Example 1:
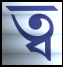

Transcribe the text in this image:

ত্ব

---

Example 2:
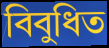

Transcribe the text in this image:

বিবুধিত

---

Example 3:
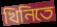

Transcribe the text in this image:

খিনিতে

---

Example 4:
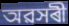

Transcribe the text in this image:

অৱসৰী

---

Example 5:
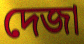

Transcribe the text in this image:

দেজা